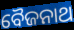
ବୈଜନାଥ